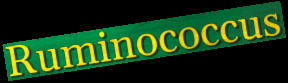
Ruminococcus